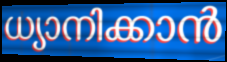
ധ്യാനിക്കാൻ